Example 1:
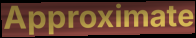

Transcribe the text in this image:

Approximate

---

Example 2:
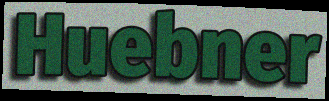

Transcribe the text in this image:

Huebner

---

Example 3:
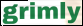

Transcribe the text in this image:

grimly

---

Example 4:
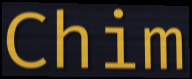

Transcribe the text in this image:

Chim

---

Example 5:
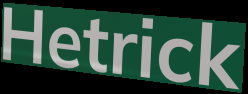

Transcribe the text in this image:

Hetrick